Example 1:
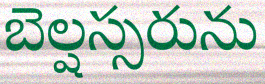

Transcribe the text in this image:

బెల్షస్సరును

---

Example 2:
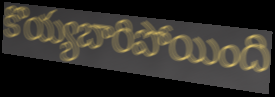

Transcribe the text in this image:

కొయ్యబారిపోయింది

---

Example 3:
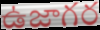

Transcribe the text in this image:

ఉజాగర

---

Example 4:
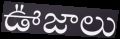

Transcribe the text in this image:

ఊజాలు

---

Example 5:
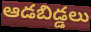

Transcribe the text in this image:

ఆడబిడ్డలు